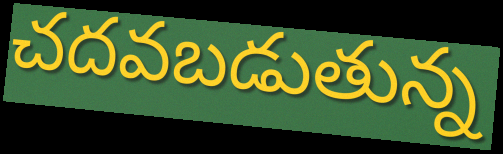
చదవబడుతున్న